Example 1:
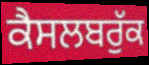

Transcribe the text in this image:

ਕੈਸਲਬਰੁੱਕ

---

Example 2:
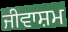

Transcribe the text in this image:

ਜੀਵਾਸ਼ਮ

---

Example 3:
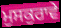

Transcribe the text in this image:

ਮੁਸਕੁਰਾਵੇ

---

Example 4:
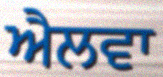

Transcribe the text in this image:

ਐਲਵਾ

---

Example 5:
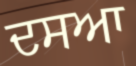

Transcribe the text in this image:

ਦਸਆ